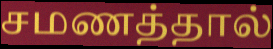
சமணத்தால்